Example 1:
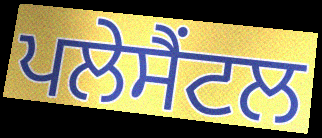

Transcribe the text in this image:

ਪਲੇਸੈਂਟਲ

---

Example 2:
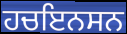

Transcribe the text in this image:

ਹਚਇਨਸਨ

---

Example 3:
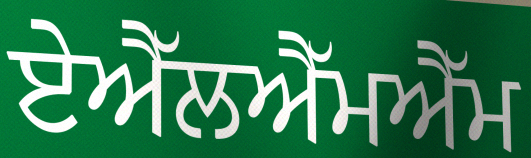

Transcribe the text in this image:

ਏਐੱਲਐੱਮਐੱਮ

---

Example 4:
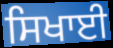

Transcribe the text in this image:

ਸਿਖਾਈ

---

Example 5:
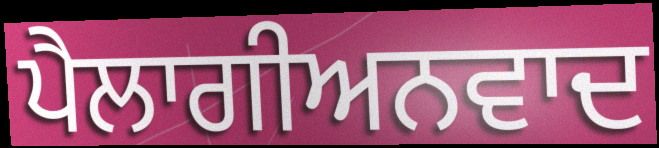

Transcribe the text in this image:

ਪੈਲਾਗੀਅਨਵਾਦ